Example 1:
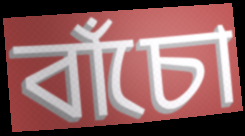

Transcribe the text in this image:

বাঁচো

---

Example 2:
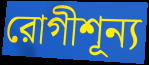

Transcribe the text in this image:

রোগীশূন্য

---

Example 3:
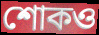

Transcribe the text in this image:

শোকও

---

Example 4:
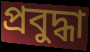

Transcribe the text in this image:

প্রবুদ্ধা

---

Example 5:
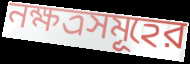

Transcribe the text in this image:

নক্ষত্রসমূহের